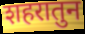
शहरातुन